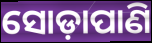
ସୋଡ଼ାପାଣି